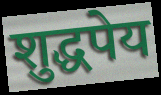
शुद्धपेय